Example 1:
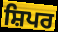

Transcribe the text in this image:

ਸ਼ਿਪਰ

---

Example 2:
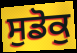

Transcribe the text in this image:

ਸੁਡੋਕੁ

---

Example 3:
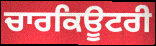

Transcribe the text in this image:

ਚਾਰਕਿਊਟਰੀ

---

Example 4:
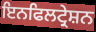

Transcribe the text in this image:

ਇਨਫਿਲਟ੍ਰੇਸ਼ਨ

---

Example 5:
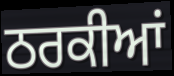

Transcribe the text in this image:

ਠਰਕੀਆਂ